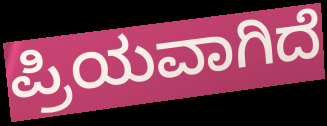
ಪ್ರಿಯವಾಗಿದೆ